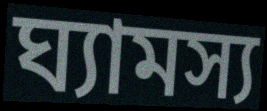
ঘ্যামস্য